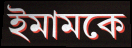
ইমামকে